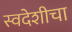
स्वदेशीचा